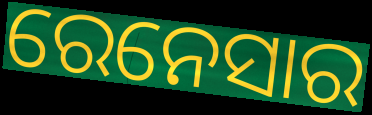
ରେନେସାର